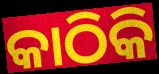
କାଠିକି